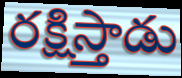
రక్షిస్తాడు